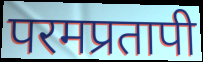
परमप्रतापी